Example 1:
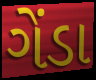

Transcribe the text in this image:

ગેંડા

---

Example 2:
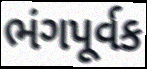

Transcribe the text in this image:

ભંગપૂર્વક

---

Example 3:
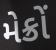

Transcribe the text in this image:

મેક્રોં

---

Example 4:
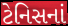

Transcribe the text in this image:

ટેનિસનાં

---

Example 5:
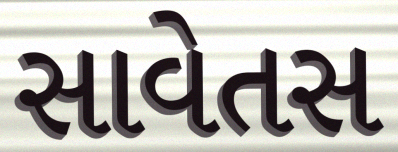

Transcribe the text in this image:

સાવેતસ